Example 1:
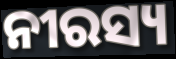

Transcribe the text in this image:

ନୀରସ୍ୟ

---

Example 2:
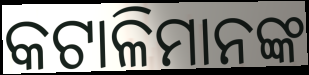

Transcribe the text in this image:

କଟାଳିମାନଙ୍କ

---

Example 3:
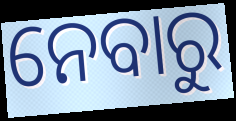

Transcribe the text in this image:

ନେବାରୁ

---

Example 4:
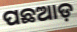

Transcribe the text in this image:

ପଛଆଡ଼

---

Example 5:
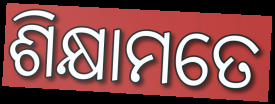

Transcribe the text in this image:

ଶିକ୍ଷାମତେ